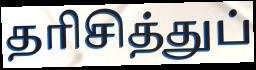
தரிசித்துப்